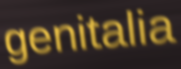
genitalia